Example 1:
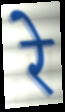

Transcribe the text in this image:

रे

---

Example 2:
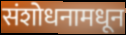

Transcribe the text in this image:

संशोधनामधून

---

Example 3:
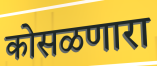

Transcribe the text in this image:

कोसळणारा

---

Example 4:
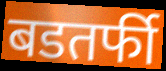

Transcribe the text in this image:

बडतर्फी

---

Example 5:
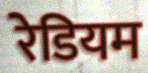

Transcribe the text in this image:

रेडियम